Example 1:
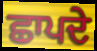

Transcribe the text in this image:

ਛਾਪਦੇ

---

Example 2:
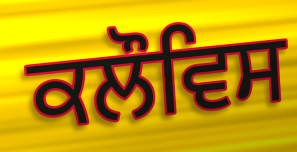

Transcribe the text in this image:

ਕਲੌਵਿਸ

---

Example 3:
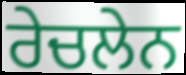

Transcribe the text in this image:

ਰੇਚਲੇਨ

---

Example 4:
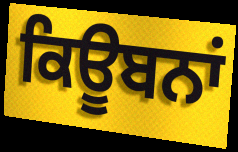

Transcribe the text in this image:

ਕਿਊਬਨਾਂ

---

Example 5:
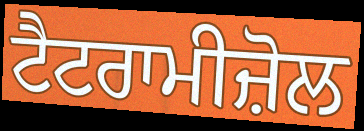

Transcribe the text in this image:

ਟੈਟਰਾਮੀਜ਼ੋਲ